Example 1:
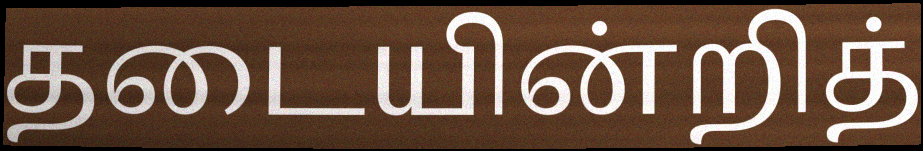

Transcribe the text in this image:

தடையின்றித்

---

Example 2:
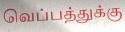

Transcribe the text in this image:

வெப்பத்துக்கு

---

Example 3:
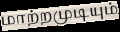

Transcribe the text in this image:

மாற்றமுடியும்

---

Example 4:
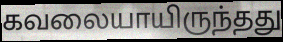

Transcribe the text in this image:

கவலையாயிருந்தது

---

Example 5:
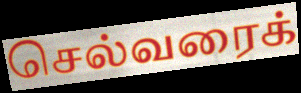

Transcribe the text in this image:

செல்வரைக்